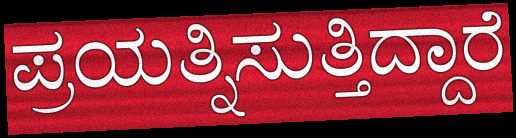
ಪ್ರಯತ್ನಿಸುತ್ತಿದ್ದಾರೆ